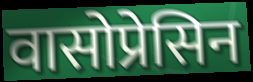
वासोप्रेसिन